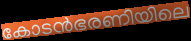
കോടൻഭരണിയിലെ